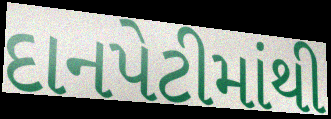
દાનપેટીમાંથી